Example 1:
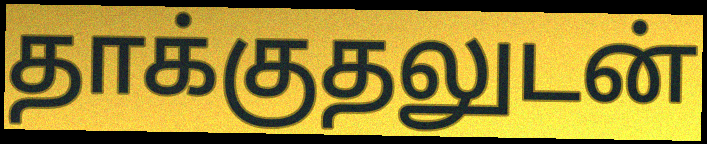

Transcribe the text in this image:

தாக்குதலுடன்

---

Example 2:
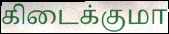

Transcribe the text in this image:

கிடைக்குமா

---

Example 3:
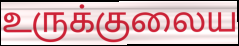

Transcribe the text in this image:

உருக்குலைய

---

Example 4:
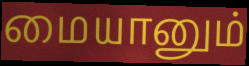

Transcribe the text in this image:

மையானும்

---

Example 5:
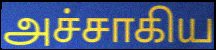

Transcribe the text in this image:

அச்சாகிய